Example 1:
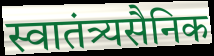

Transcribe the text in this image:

स्वातंत्र्यसैनिक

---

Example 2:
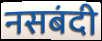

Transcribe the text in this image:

नसबंदी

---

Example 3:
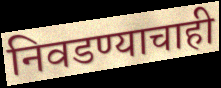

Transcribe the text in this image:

निवडण्याचाही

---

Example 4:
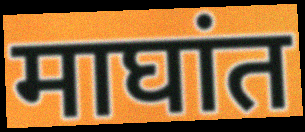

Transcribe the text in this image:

माघांत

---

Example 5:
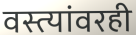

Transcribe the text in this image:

वस्त्यांवरही